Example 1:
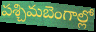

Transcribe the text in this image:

పశ్చిమబెంగాల్లో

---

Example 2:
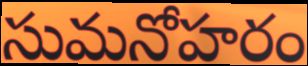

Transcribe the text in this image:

సుమనోహరం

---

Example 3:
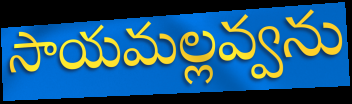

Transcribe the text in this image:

సాయమల్లవ్వను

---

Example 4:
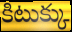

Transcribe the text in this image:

కిటుక్కు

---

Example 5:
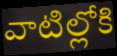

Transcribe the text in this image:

వాటిల్లోకి